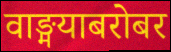
वाङ्मयाबरोबर